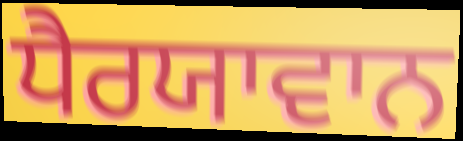
ਧੈਰਯਾਵਾਨ